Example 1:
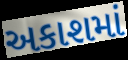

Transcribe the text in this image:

અકાશમાં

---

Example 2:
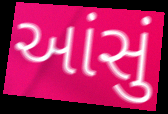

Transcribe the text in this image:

આંસું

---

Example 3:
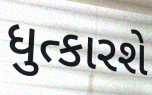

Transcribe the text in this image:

ધુત્કારશે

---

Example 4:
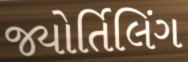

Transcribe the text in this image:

જ્યોર્તિલિંગ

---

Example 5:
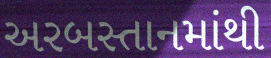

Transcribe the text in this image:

અરબસ્તાનમાંથી